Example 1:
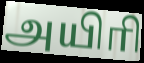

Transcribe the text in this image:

அயிரி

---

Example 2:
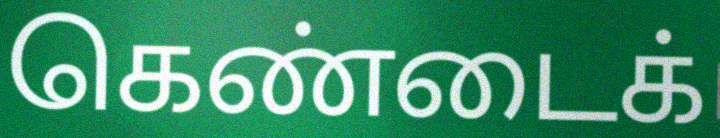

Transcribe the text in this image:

கெண்டைக்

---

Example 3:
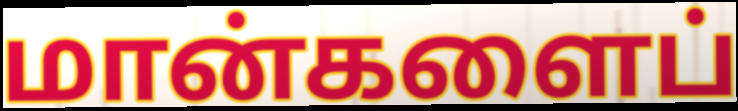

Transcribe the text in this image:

மான்களைப்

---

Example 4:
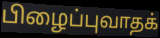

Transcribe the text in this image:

பிழைப்புவாதக்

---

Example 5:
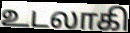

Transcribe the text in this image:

உடலாகி